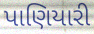
પાણિયારી